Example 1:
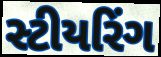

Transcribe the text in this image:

સ્ટીયરિંગ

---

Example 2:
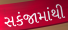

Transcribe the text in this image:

સકંજામાંથી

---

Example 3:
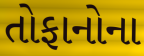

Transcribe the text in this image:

તોફાનોના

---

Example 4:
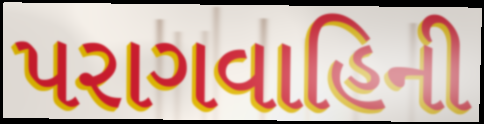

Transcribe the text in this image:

પરાગવાહિની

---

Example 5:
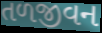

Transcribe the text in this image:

તળજીવન